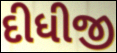
દીધીજી